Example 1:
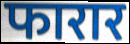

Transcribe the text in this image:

फारार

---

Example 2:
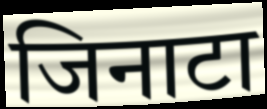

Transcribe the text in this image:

जिनाटा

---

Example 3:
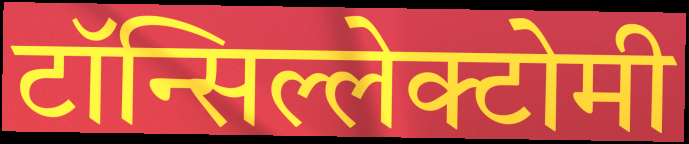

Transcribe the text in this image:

टॉन्सिल्लेक्टोमी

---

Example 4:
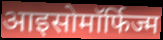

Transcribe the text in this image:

आइसोमॉर्फिज्म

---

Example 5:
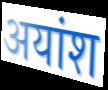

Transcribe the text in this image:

अयांश